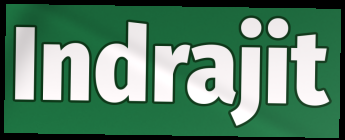
Indrajit